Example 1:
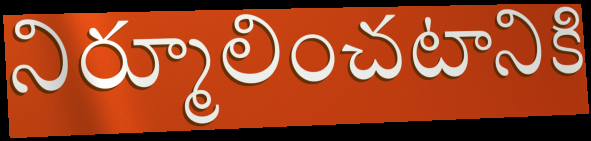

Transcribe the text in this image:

నిర్మూలించటానికి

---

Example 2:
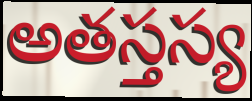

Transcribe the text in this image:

అతస్తస్య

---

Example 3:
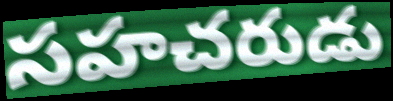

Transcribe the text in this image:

సహచరుడు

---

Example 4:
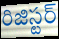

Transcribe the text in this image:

రిజిస్టర్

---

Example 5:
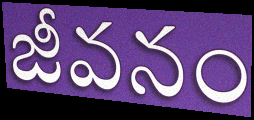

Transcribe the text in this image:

జీవనం